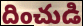
దించుడి